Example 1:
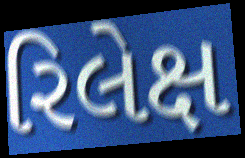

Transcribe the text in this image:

રિલેક્ષ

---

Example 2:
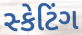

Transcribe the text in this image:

સ્કેટિંગ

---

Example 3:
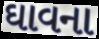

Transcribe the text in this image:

ઘાવના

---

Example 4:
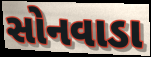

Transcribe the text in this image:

સોનવાડા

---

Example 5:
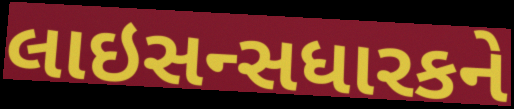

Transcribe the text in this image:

લાઇસન્સધારકને